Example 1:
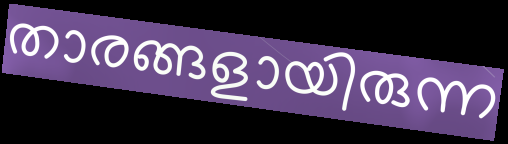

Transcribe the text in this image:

താരങ്ങളായിരുന്ന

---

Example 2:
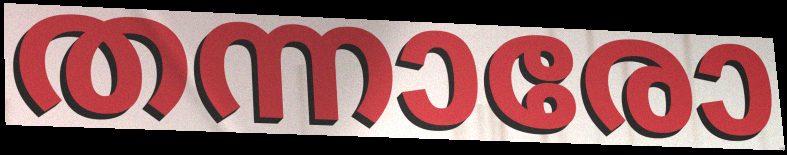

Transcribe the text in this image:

തന്നാരോ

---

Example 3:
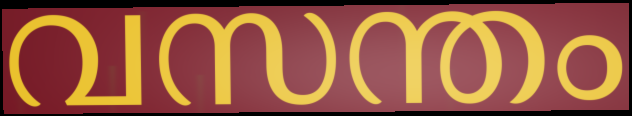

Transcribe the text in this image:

വസന്തം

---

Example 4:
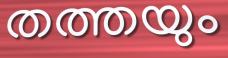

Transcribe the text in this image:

തത്തയും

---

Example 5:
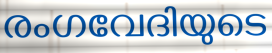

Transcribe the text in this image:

രംഗവേദിയുടെ